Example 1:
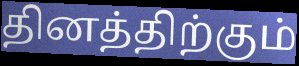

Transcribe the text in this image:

தினத்திற்கும்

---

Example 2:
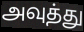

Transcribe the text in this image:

அவுத்து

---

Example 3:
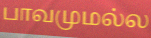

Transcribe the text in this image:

பாவமுமல்ல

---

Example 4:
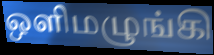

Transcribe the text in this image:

ஒளிமழுங்கி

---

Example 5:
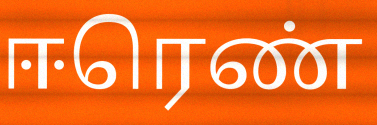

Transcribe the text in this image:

ஈரெண்